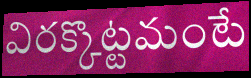
విరక్కొట్టమంటే